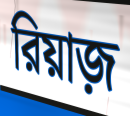
রিয়াজ়